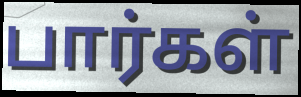
பார்கள்